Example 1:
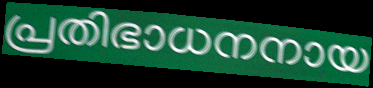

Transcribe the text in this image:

പ്രതിഭാധനനായ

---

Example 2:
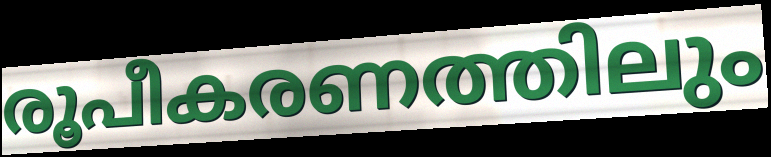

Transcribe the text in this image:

രൂപീകരണത്തിലും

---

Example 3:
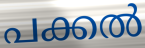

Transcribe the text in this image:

പക്കൽ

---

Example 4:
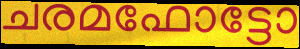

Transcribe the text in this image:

ചരമഫോട്ടോ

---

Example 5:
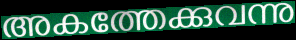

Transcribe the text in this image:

അകത്തേക്കുവന്നു